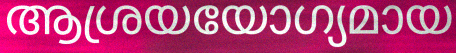
ആശ്രയയോഗ്യമായ